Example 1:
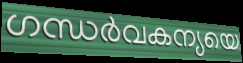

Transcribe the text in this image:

ഗന്ധർവകന്യയെ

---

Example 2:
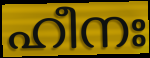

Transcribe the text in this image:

ഹീനഃ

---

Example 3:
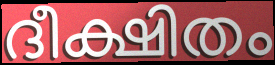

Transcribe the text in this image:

ദീക്ഷിതം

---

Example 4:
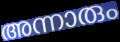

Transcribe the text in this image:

അന്നാരും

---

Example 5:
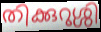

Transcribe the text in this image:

തിക്കുറുശ്ശി